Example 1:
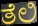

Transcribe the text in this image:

ತೆಲಿ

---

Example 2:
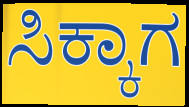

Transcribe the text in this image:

ಸಿಕ್ಕಾಗ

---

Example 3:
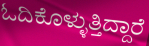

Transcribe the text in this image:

ಓದಿಕೊಳ್ಳುತ್ತಿದ್ದಾರೆ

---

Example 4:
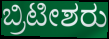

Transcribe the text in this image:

ಬ್ರಿಟೀಶರು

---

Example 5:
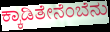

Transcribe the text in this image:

ಕ್ಕಾಡಿತೇನೆಂಬೆನು